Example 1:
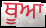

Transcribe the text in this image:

ਥੂਆ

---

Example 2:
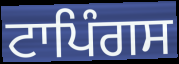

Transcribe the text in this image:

ਟਾਪਿੰਗਸ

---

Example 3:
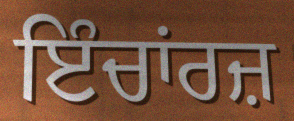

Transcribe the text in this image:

ਇੰਚਾਂਰਜ਼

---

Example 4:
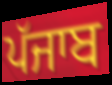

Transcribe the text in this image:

ਪੱਜਾਬ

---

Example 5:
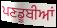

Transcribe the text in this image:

ਪਣਡੂਬੀਆਂ